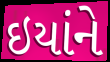
ઇયાંને